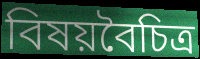
বিষয়বৈচিত্র